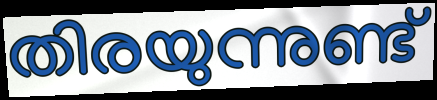
തിരയുന്നുണ്ട്